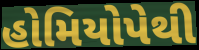
હોમિયોપેથી